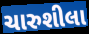
ચારુશીલા